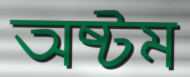
অষ্টম